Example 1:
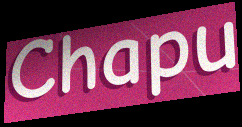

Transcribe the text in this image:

Chapu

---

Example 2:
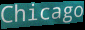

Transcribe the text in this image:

Chicago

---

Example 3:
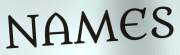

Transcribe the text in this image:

NAMES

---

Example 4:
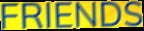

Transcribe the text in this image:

FRIENDS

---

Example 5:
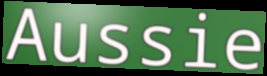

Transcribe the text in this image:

Aussie